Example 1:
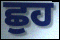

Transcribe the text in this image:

ਛੁਹ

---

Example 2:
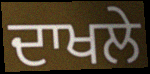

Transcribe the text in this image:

ਦਾਖਲੇ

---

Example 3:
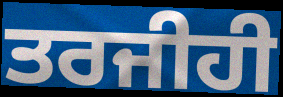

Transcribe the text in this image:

ਤਰਜੀਹੀ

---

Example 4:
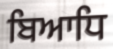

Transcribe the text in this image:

ਬਿਆਧਿ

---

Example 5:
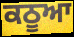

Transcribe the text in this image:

ਕਠੂਆ